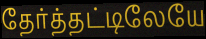
தேர்த்தட்டிலேயே